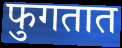
फुगतात